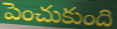
పెంచుకుంది